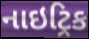
નાઇટ્રિક